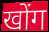
खोंग